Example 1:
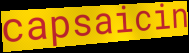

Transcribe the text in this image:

capsaicin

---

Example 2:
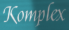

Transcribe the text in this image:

Komplex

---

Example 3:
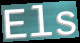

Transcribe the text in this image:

Els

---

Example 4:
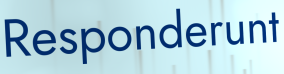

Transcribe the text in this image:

Responderunt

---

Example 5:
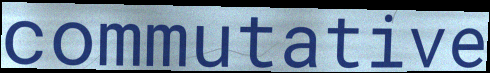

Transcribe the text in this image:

commutative